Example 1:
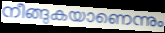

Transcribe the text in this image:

നീങ്ങുകയാണെന്നും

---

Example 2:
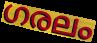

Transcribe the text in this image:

ഗരലം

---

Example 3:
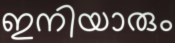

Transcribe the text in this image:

ഇനിയാരും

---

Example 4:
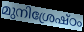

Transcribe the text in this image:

മുനിശ്രേഷ്ഠം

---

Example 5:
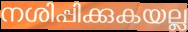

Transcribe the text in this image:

നശിപ്പിക്കുകയല്ല